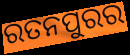
ରତନପୁରର